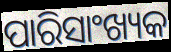
ପାରିସାଂଖ୍ୟକ